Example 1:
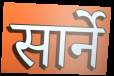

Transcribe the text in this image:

सार्ने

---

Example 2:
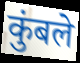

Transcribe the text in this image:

कुंबले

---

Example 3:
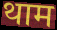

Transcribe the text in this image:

थाम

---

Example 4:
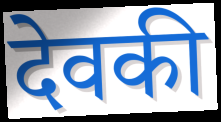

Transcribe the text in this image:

देवकी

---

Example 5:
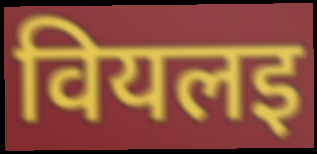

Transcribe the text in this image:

वियलइ